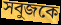
সবুজকে